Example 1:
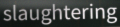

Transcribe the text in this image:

slaughtering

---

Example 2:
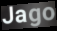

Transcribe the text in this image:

Jago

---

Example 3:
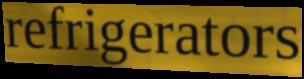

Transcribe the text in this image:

refrigerators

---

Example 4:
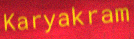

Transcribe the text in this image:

Karyakram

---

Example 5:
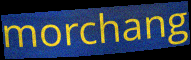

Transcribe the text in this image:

morchang